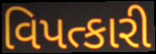
વિપત્કારી